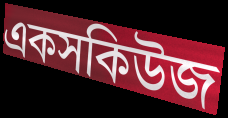
একসকিউজ